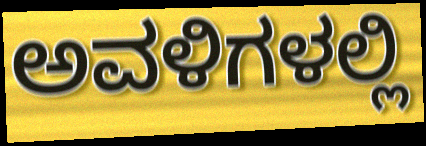
ಅವಳಿಗಳಲ್ಲಿ